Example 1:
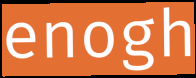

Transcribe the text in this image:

enogh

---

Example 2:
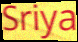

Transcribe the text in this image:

Sriya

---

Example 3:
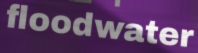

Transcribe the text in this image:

floodwater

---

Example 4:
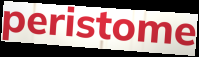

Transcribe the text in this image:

peristome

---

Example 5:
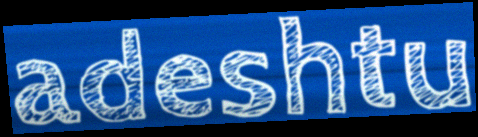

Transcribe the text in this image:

adeshtu